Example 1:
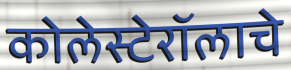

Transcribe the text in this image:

कोलेस्टेरॉलाचे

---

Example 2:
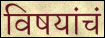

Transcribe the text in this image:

विषयांचं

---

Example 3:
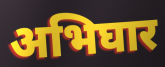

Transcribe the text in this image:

अभिघार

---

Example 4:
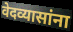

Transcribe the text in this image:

वेदव्यासांना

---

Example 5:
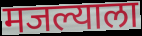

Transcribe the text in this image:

मजल्याला